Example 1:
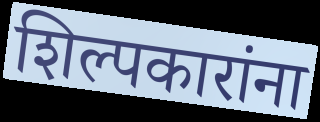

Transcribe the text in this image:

शिल्पकारांना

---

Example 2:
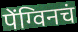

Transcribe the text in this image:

पेंग्विनचं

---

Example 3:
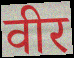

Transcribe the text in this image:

वीर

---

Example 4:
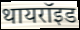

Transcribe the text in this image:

थायरॉइड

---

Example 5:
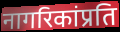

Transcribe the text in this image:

नागरिकांप्रति